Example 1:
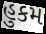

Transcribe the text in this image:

હુકમ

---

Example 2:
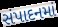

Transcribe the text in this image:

સંપાદનમાં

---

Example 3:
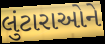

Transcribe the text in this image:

લુંટારાઓને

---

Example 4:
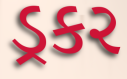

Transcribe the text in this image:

ડ્રકર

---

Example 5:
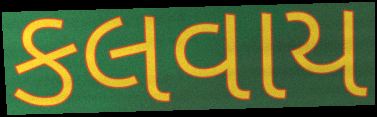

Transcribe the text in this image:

કલવાય